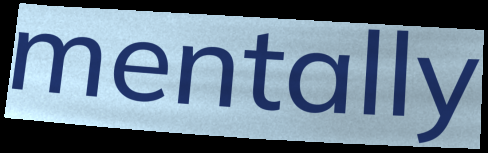
mentally